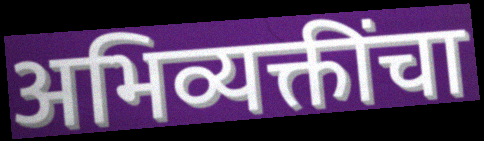
अभिव्यक्तींचा